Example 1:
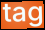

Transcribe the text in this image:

tag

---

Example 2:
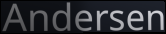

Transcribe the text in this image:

Andersen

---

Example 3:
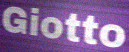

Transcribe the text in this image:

Giotto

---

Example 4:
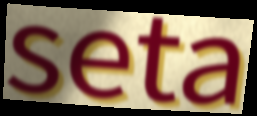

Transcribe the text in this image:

seta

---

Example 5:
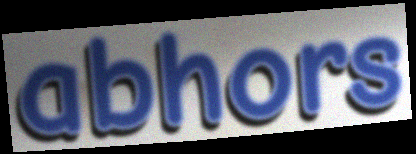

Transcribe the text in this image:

abhors